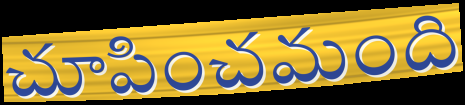
చూపించమంది